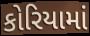
કોરિયામાં